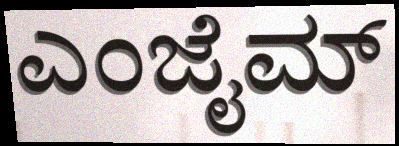
ಎಂಜೈಮ್